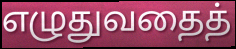
எழுதுவதைத்